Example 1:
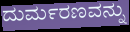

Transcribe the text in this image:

ದುರ್ಮರಣವನ್ನು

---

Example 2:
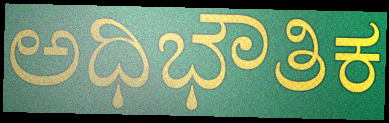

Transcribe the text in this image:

ಅಧಿಭೌತಿಕ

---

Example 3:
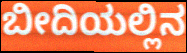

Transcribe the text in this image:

ಬೀದಿಯಲ್ಲಿನ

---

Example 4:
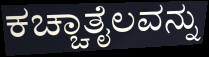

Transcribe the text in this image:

ಕಚ್ಚಾತೈಲವನ್ನು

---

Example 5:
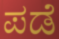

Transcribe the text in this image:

ಪಡೆ